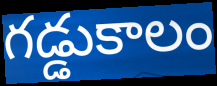
గడ్డుకాలం